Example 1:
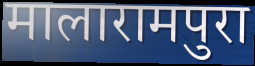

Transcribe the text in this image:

मालारामपुरा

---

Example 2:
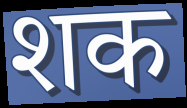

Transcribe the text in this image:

शक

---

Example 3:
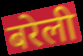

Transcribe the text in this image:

बरेली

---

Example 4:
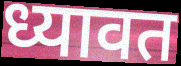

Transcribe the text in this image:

ध्यावत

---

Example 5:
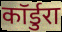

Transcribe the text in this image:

कॉर्डुरा